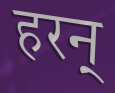
हरन्